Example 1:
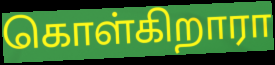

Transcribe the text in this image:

கொள்கிறாரா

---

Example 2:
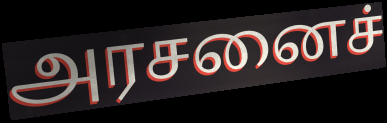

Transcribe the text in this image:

அரசனைச்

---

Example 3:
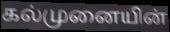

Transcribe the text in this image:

கல்முனையின்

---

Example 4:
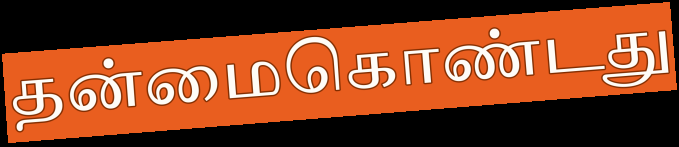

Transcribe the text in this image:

தன்மைகொண்டது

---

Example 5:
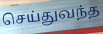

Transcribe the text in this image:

செய்துவந்த